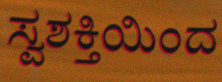
ಸ್ವಶಕ್ತಿಯಿಂದ